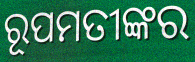
ରୂପମତୀଙ୍କର